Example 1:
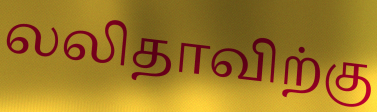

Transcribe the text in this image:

லலிதாவிற்கு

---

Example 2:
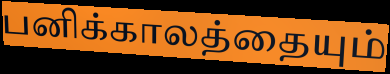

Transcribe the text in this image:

பனிக்காலத்தையும்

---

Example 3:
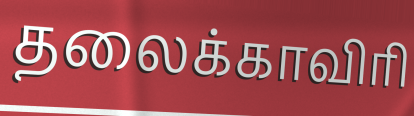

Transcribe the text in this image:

தலைக்காவிரி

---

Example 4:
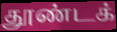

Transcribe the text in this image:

தூண்டக்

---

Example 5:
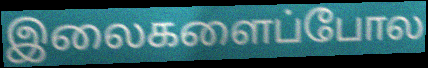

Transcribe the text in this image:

இலைகளைப்போல